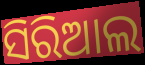
ସିରିଆଲ